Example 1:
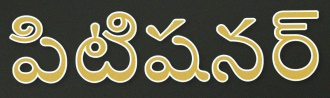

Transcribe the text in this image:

పిటిషనర్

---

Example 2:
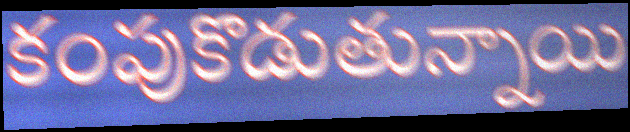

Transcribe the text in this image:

కంపుకొడుతున్నాయి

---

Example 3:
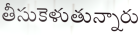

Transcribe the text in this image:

తీసుకెళుతున్నారు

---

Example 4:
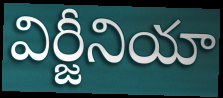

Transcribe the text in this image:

విర్జీనియా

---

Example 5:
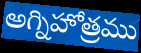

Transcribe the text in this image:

అగ్నిహోత్రము